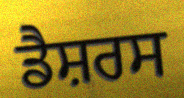
ਡੈਸ਼ਰਸ